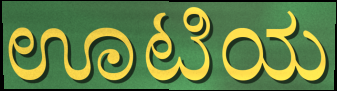
ಊಟಿಯ